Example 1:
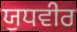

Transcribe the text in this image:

ਯੁਧਵੀਰ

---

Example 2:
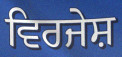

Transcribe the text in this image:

ਵਿਰਜੇਸ਼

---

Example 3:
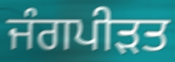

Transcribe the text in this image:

ਜੰਗਪੀੜਤ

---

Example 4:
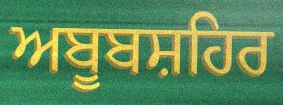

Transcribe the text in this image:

ਅਬੂਬਸ਼ਹਿਰ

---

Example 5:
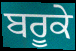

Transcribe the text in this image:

ਬਰੂਕੇ